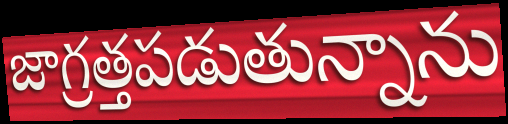
జాగ్రత్తపడుతున్నాను